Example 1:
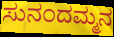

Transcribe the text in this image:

ಸುನಂದಮ್ಮನ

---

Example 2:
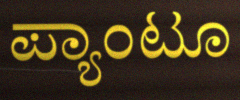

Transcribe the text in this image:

ಪ್ಯಾಂಟೂ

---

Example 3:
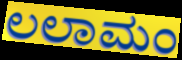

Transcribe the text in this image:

ಲಲಾಮಂ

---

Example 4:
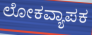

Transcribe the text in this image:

ಲೋಕವ್ಯಾಪಕ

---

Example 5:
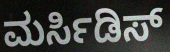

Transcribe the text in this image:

ಮರ್ಸಿಡಿಸ್